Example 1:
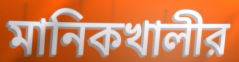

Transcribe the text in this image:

মানিকখালীর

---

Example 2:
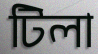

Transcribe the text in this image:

টিলা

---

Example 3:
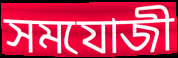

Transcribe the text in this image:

সমযোজী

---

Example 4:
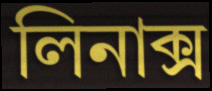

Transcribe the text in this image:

লিনাক্স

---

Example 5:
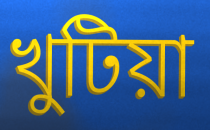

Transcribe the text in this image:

খুটিয়া